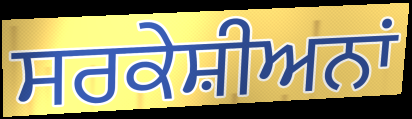
ਸਰਕੇਸ਼ੀਅਨਾਂ